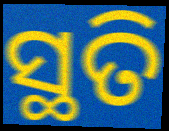
ସ୍ଥତି